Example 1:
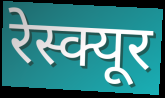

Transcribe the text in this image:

रेस्क्यूर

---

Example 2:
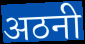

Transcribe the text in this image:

अठनी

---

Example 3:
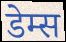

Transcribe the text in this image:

डेम्स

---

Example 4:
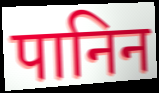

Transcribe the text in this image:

पानिन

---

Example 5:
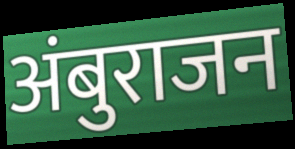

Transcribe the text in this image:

अंबुराजन